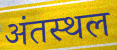
अंतस्थल